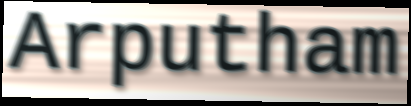
Arputham